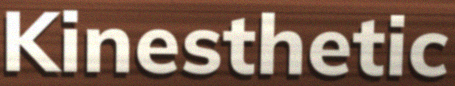
Kinesthetic